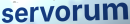
servorum